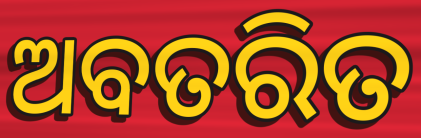
ଅବତରିତ